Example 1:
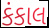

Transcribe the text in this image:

કંકાલ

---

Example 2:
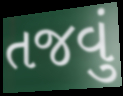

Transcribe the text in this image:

તજવું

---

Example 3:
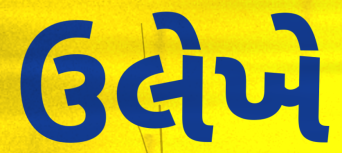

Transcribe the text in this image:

ઉલેખે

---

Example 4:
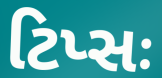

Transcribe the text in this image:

ટિપ્સઃ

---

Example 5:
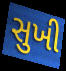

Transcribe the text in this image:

સુખી